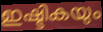
ഇഷ്ടികയും